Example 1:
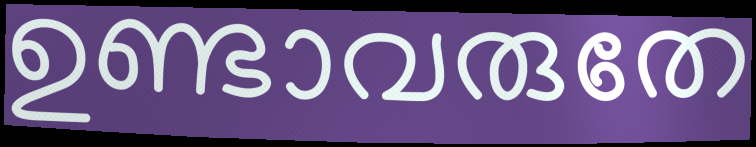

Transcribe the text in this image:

ഉണ്ടാവരുതേ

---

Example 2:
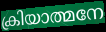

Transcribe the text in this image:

ക്രിയാത്മനേ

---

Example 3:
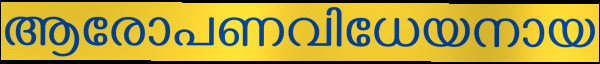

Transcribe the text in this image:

ആരോപണവിധേയനായ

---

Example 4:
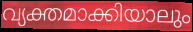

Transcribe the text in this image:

വ്യക്തമാക്കിയാലും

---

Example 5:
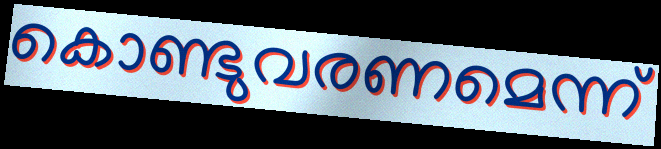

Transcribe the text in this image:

കൊണ്ടുവരണമെന്ന്